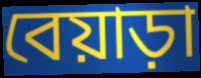
বেয়াড়া